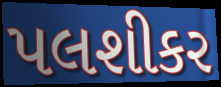
પલશીકર